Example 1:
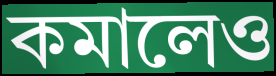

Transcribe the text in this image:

কমালেও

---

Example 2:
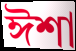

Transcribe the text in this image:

ঈশা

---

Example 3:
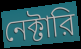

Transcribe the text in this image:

নেক্টারি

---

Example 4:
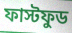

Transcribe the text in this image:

ফাস্টফুড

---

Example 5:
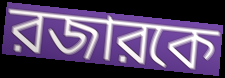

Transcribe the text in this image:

রজারকে